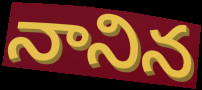
నానిన